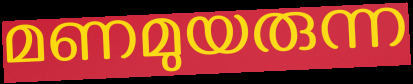
മണമുയരുന്ന